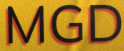
MGD